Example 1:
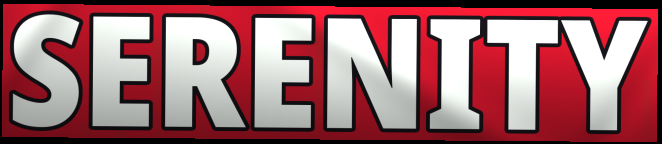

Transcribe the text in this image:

SERENITY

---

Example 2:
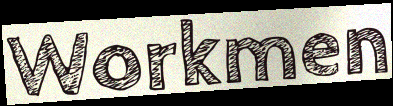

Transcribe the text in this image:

Workmen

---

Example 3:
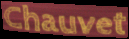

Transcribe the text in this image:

Chauvet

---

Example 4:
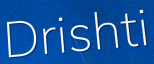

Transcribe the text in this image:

Drishti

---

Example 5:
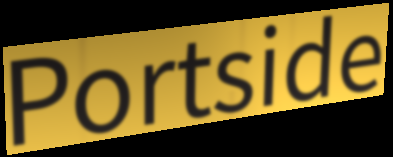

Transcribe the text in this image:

Portside